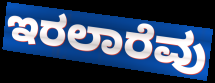
ಇರಲಾರೆವು